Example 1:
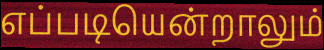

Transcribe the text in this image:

எப்படியென்றாலும்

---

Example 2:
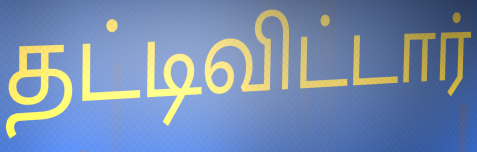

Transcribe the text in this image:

தட்டிவிட்டார்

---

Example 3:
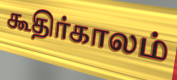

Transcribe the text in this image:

கூதிர்காலம்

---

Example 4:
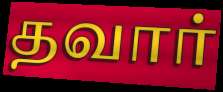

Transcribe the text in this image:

தவார்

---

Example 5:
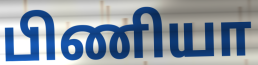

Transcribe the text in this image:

பிணியா